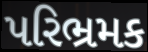
પરિભ્રમક